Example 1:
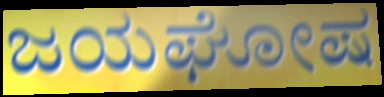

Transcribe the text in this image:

ಜಯಘೋಷ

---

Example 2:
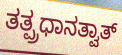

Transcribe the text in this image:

ತತ್ಪ್ರಧಾನತ್ವಾತ್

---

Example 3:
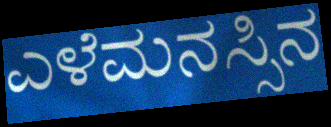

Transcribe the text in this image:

ಎಳೆಮನಸ್ಸಿನ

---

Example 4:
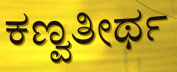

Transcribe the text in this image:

ಕಣ್ವತೀರ್ಥ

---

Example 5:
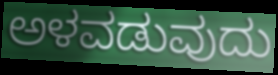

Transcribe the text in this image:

ಅಳವಡುವುದು